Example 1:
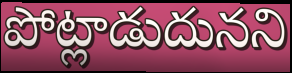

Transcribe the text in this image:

పోట్లాడుదునని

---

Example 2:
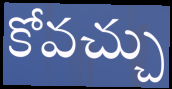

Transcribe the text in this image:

కోవచ్చు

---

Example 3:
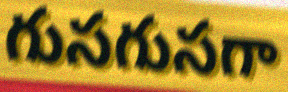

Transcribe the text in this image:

గుసగుసగా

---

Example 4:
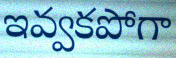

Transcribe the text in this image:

ఇవ్వకపోగా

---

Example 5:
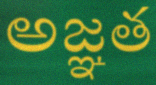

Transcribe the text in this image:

అజ్ఞత